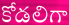
కోడలిగా